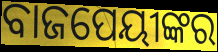
ବାଜପେୟୀଙ୍କର